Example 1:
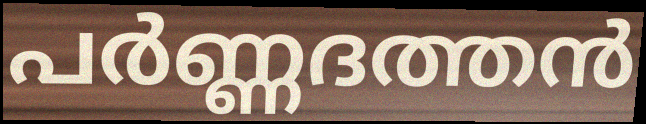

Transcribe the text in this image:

പർണ്ണദത്തൻ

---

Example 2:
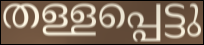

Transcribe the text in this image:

തള്ളപ്പെട്ടു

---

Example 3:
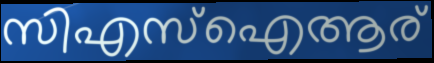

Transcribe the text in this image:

സിഎസ്ഐആര്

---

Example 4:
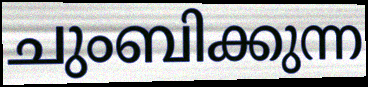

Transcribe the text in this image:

ചുംബിക്കുന്ന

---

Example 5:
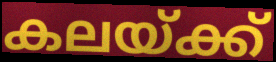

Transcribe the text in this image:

കലയ്ക്ക്